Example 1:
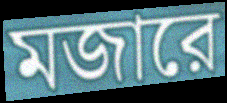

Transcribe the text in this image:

মজারে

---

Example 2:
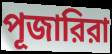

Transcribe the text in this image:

পূজারিরা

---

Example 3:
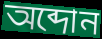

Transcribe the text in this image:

অব্দোন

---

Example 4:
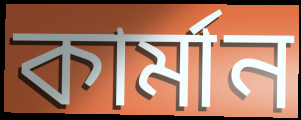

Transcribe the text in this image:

কার্মান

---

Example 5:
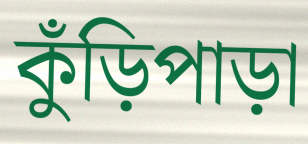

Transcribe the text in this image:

কুঁড়িপাড়া